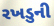
રખડુની